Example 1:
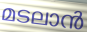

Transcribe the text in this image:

മടലാൻ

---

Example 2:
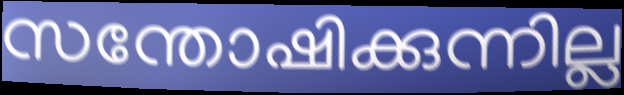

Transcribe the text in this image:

സന്തോഷിക്കുന്നില്ല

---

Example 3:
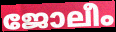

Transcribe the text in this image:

ജോലീം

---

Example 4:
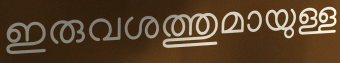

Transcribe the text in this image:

ഇരുവശത്തുമായുള്ള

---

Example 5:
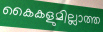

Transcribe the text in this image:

കൈകളുമില്ലാത്ത